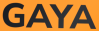
GAYA